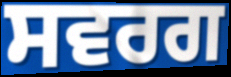
ਸਵਰਗ